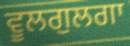
ਵੂਲਗੁਲਗਾ